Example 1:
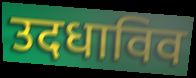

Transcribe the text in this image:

उदधाविव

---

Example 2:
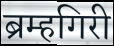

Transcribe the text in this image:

ब्रम्हगिरी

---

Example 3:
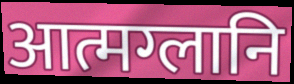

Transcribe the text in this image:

आत्मग्लानि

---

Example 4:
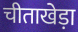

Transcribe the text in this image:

चीताखेड़ा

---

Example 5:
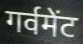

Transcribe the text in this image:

गर्वमेंट